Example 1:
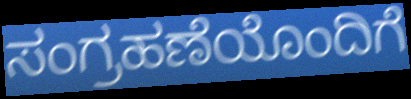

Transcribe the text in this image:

ಸಂಗ್ರಹಣೆಯೊಂದಿಗೆ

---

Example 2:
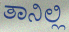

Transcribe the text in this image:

ತಾನಿಲ್ಲಿ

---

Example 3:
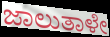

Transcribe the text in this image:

ಜಾಲುತಾಳೇ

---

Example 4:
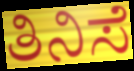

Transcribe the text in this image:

ತಿನಿಸೆ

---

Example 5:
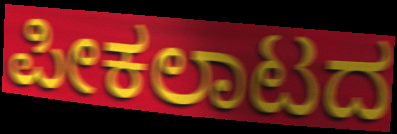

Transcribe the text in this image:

ಪೀಕಲಾಟದ